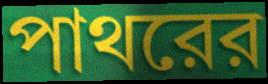
পাথরের